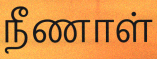
நீணாள்